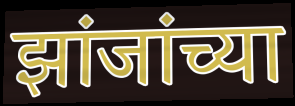
झांजांच्या